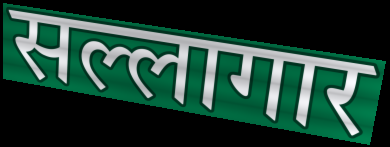
सल्‍लागार